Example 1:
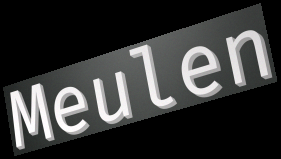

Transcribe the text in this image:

Meulen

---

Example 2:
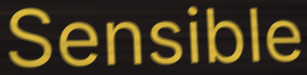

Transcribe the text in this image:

Sensible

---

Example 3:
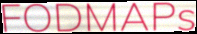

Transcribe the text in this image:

FODMAPs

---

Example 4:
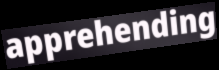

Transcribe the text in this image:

apprehending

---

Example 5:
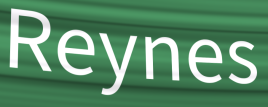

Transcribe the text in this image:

Reynes